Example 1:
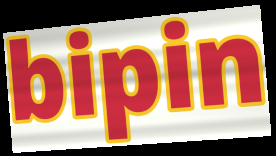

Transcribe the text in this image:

bipin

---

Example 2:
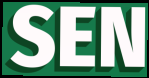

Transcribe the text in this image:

SEN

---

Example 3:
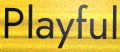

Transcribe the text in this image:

Playful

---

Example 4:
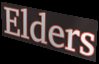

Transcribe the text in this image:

Elders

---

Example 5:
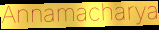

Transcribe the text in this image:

Annamacharya